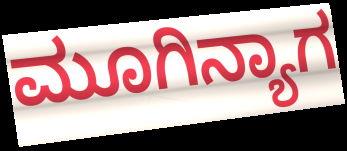
ಮೂಗಿನ್ಯಾಗ